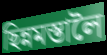
ছিন্নমস্তালৈ